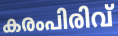
കരംപിരിവ്